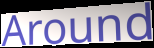
Around